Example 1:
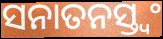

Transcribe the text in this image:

ସନାତନସ୍ତ୍ୱଂ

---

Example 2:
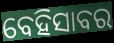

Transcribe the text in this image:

ବେହିସାବର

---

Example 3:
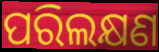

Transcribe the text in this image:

ପରିଲକ୍ଷଣ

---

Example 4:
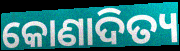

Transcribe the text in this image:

କୋଣାଦିତ୍ୟ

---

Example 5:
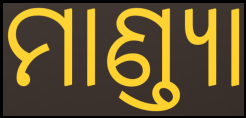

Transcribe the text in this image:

ମାଣ୍ଡ୍ୟା